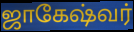
ஜாகேஷ்வர்